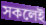
সকলেই